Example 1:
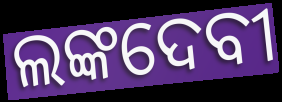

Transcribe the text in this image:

ଲଙ୍କଦେବୀ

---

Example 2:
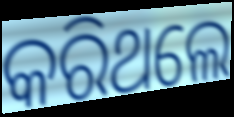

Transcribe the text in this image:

କରିଥଲେ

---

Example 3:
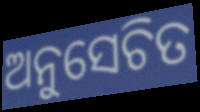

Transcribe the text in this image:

ଅନୁସେଚିତ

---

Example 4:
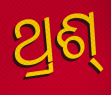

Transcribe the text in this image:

ଥ୍ରଶ୍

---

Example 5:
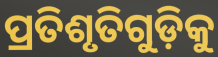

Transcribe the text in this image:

ପ୍ରତିଶୃତିଗୁଡ଼ିକୁ